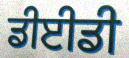
ਡੀਈਡੀ